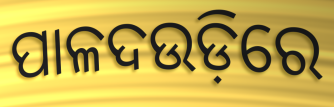
ପାଳଦଉଡ଼ିରେ